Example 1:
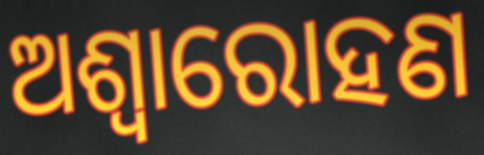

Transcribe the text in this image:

ଅଶ୍ୱାରୋହଣ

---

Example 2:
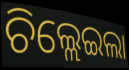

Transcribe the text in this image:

ଚିଲ୍ଲେଇଲା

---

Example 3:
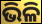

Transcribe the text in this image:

ଭିଳି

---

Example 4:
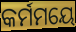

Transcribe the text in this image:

କର୍ମମୟେ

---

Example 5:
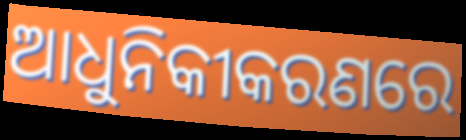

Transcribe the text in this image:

ଆଧୁନିକୀକରଣରେ